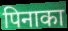
पिनाका